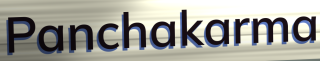
Panchakarma